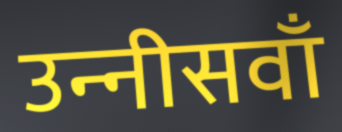
उन्नीसवाँ